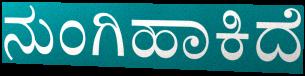
ನುಂಗಿಹಾಕಿದೆ